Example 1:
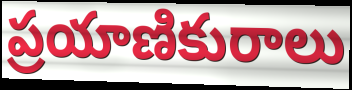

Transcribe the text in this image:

ప్రయాణికురాలు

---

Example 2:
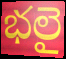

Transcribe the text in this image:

భలై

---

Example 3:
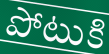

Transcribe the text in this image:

పోటుకి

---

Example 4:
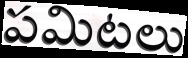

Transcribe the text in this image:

పమిటలు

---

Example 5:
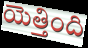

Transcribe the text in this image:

యెత్తింది